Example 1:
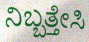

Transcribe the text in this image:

ನಿಬ್ಬತ್ತೇಸಿ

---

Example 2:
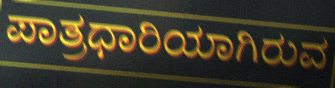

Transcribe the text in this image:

ಪಾತ್ರಧಾರಿಯಾಗಿರುವ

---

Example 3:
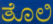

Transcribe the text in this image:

ತೊಲಿ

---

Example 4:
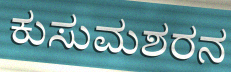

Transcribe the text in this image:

ಕುಸುಮಶರನ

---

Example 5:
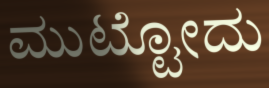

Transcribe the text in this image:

ಮುಟ್ಟೋದು